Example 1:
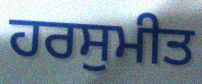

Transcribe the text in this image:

ਹਰਸੁਮੀਤ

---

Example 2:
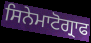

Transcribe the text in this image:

ਸਿਨੇਮਾਟੋਗ੍ਰਾਫ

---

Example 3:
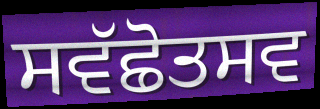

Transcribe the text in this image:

ਸਵੱਛੋਤਸਵ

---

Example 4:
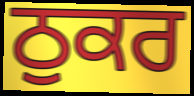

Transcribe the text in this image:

ਠੁਕਰ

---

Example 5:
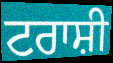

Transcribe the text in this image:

ਟਰਾਸ਼ੀ